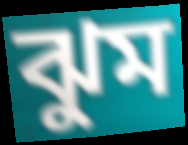
ঝুম